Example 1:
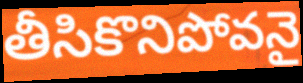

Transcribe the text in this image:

తీసికొనిపోవనై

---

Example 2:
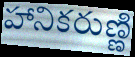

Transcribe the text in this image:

హానికరుణ్ణి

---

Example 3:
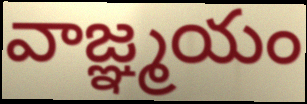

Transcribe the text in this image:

వాజ్ఞ్మయం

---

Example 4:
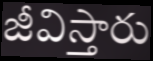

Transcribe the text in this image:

జీవిస్తారు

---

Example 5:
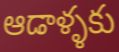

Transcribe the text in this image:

ఆడాళ్ళకు